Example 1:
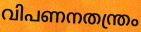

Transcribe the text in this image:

വിപണനതന്ത്രം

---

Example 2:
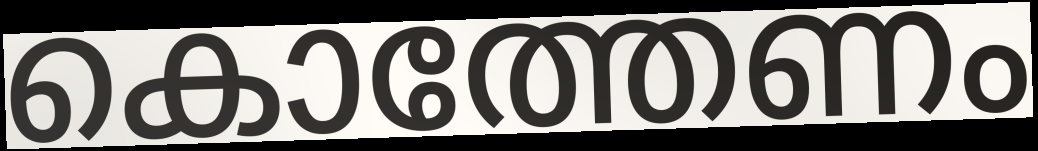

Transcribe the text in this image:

കൊത്തേണം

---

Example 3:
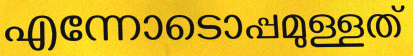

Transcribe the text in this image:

എന്നോടൊപ്പമുള്ളത്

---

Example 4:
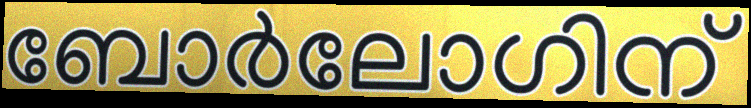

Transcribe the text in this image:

ബോർലോഗിന്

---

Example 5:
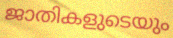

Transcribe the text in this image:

ജാതികളുടെയും